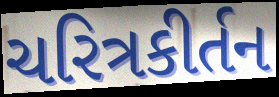
ચરિત્રકીર્તન